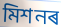
মিশনৰ